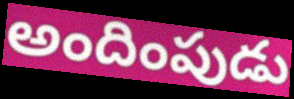
అందింపుడు